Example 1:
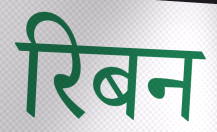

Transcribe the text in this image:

रिबन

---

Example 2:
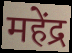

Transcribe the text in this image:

महेंद्र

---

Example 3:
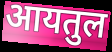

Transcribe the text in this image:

आयतुल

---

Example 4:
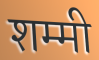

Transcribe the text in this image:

शम्मी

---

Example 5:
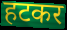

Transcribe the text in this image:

हटकर